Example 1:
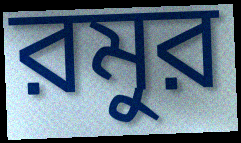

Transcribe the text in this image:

রমুর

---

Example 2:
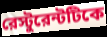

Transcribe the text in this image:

রেস্টুরেন্টটিকে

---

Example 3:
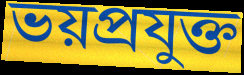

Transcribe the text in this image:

ভয়প্রযুক্ত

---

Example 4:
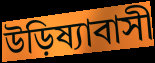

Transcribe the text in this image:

উড়িষ্যাবাসী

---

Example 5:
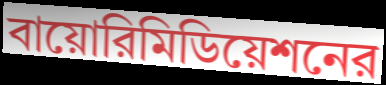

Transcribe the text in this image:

বায়োরিমিডিয়েশনের